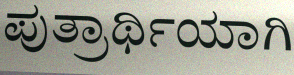
ಪುತ್ರಾರ್ಥಿಯಾಗಿ